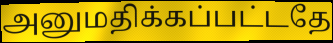
அனுமதிக்கப்பட்டதே